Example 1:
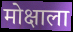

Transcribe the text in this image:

मोक्षाला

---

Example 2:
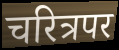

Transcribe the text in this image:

चरित्रपर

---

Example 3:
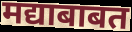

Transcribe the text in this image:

मद्याबाबत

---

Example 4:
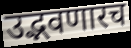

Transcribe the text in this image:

उद्भवणारच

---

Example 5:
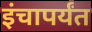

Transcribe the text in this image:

इंचापर्यंत